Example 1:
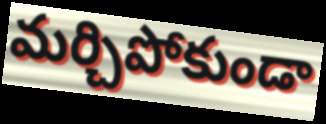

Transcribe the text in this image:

మర్చిపోకుండా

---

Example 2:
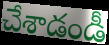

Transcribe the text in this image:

చేశాడండీ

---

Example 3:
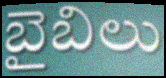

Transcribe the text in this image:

బైబిలు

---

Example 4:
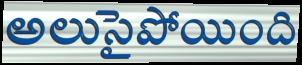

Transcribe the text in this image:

అలుసైపోయింది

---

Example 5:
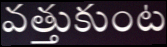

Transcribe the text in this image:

వత్తుకుంట